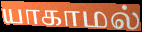
யாகாமல்